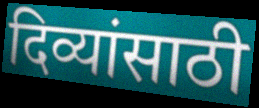
दिव्यांसाठी